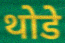
थोडे